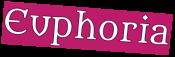
Euphoria